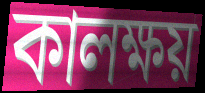
কালক্ষয়